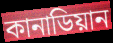
কানাডিয়ান